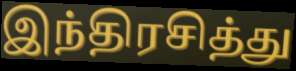
இந்திரசித்து